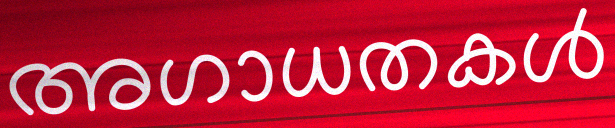
അഗാധതകൾ